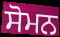
ਸੋਮਨ